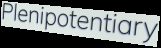
Plenipotentiary